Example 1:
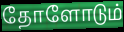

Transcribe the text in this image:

தோளோடும்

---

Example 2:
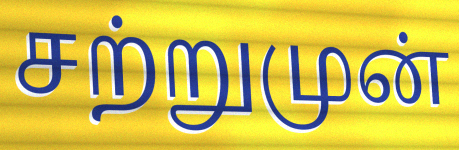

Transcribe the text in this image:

சற்றுமுன்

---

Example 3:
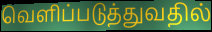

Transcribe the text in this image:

வெளிப்படுத்துவதில்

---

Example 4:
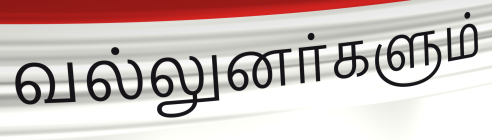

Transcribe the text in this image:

வல்லுனர்களும்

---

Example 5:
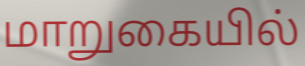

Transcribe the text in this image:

மாறுகையில்